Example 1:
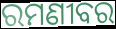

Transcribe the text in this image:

ରମଣୀବର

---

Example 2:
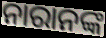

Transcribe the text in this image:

ନାରାନଙ୍କ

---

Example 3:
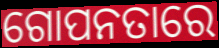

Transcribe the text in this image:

ଗୋପନତାରେ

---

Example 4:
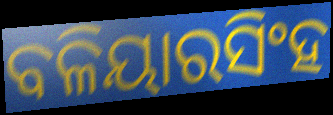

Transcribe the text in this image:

ବଳିୟାରସିଂହ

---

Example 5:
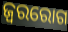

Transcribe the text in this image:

ଜ୍ୱରରୋଗ